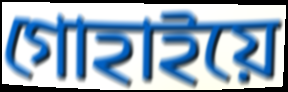
গোহাইয়ে